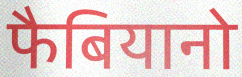
फैबियानो